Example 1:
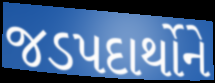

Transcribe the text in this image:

જડપદાર્થોને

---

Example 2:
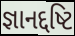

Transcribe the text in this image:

જ્ઞાનદ્દષ્ટિ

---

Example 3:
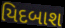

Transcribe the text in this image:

યિદબાશ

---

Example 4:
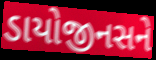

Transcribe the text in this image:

ડાયોજીનસને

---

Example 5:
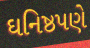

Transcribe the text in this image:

ઘનિષ્ઠપણે